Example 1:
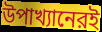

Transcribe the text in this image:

উপাখ্যানেরই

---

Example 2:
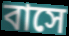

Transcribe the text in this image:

বাসে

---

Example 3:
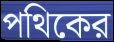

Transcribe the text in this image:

পথিকের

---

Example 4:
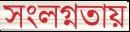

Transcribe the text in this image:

সংলগ্নতায়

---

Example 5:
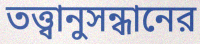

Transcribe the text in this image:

তত্ত্বানুসন্ধানের